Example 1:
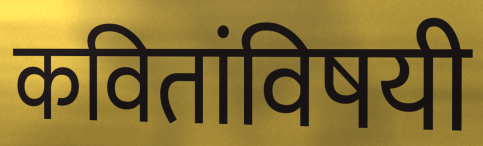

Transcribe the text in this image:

कवितांविषयी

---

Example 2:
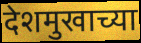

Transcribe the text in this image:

देशमुखाच्या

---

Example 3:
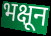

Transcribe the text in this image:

भक्षून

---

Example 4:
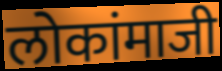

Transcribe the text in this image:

लोकांमाजी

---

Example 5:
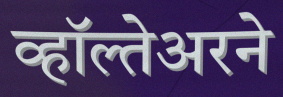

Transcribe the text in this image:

व्हॉल्तेअरने